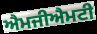
ਐਮਜੀਐਮਟੀ